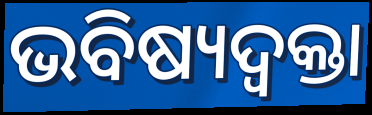
ଭବିଷ୍ୟଦ୍ବକ୍ତା